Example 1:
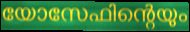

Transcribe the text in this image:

യോസേഫിന്റെയും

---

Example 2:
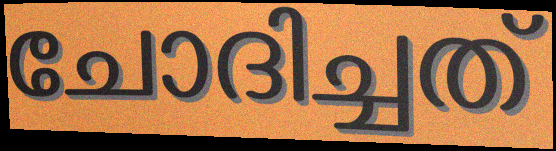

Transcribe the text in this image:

ചോദിച്ചത്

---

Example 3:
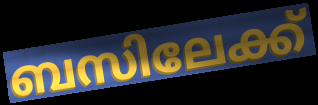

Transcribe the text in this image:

ബസിലേക്ക്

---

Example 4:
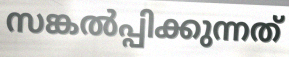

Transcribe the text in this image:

സങ്കൽപ്പിക്കുന്നത്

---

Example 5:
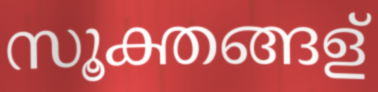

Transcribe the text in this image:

സൂക്തങ്ങള്